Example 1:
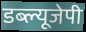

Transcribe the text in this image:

डब्ल्यूजेपी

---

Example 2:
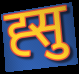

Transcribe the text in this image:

ह्सु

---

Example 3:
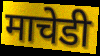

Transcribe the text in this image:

माचेडी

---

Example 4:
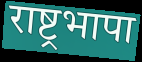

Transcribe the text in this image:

राष्ट्रभापा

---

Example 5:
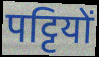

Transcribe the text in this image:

पट्टियों